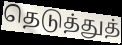
தெடுத்துத்